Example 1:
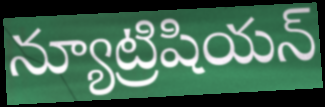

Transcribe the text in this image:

న్యూట్రిషియన్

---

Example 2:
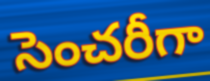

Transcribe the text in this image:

సెంచరీగా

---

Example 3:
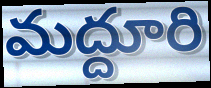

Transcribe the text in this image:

మద్దూరి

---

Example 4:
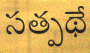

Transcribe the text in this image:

సత్పథే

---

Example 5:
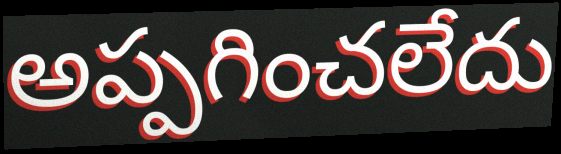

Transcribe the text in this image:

అప్పగించలేదు